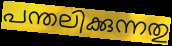
പന്തലിക്കുന്നതു